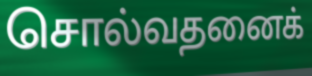
சொல்வதனைக்